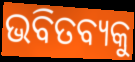
ଭବିତବ୍ୟକୁ